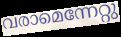
വരാമെന്നേറ്റു